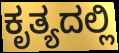
ಕೃತ್ಯದಲ್ಲಿ